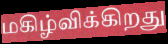
மகிழ்விக்கிறது